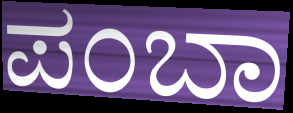
ಪಂಬಾ